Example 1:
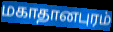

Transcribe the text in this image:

மகாதானபுரம்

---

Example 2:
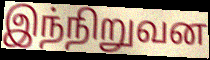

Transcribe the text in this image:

இந்நிறுவன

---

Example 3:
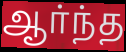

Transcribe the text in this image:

ஆர்ந்த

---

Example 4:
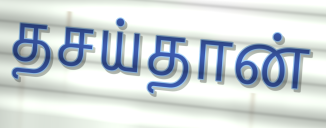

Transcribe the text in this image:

தசய்தான்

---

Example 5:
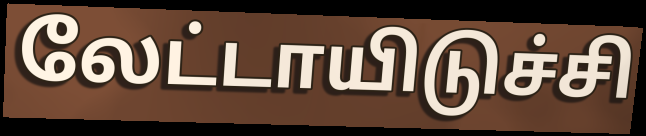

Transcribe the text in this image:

லேட்டாயிடுச்சி